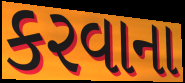
કરવાના